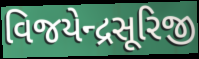
વિજયેન્દ્રસૂરિજી